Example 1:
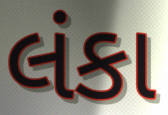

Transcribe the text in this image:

લંકા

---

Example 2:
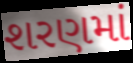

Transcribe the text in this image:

શરણમાં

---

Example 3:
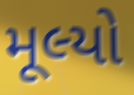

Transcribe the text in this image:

મૂલ્યો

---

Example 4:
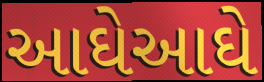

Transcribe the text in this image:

આઘેઆઘે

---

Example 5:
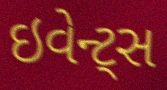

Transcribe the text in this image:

ઇવેન્ટ્સ